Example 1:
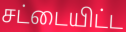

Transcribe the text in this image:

சட்டையிட்ட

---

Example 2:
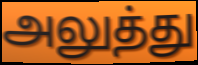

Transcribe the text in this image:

அலுத்து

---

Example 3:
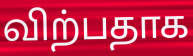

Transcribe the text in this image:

விற்பதாக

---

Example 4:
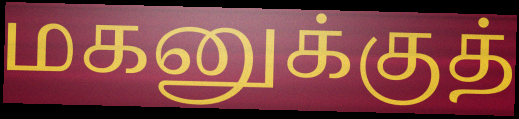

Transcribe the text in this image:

மகனுக்குத்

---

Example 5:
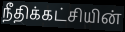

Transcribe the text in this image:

நீதிக்கட்சியின்